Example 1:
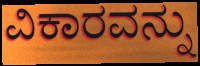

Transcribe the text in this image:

ವಿಕಾರವನ್ನು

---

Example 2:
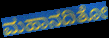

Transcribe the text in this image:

ಮಹಾನದಿತೋ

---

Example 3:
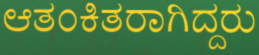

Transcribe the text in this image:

ಆತಂಕಿತರಾಗಿದ್ದರು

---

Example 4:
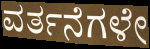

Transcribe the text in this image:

ವರ್ತನೆಗಳೇ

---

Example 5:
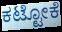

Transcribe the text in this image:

ಕಟ್ಟೋಕೆ